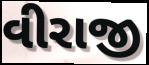
વીરાજી